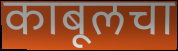
काबूलचा